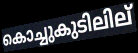
കൊച്ചുകുടിലില്